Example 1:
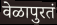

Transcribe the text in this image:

वेळापुरतं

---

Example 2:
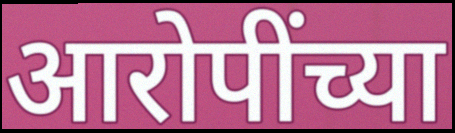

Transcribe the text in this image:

आरोपींच्या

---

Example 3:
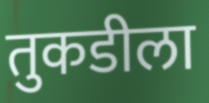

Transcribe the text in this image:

तुकडीला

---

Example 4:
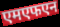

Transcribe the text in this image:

एमएफएन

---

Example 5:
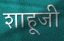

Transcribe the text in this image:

शाहूजी